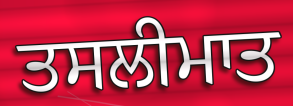
ਤਸਲੀਮਾਤ